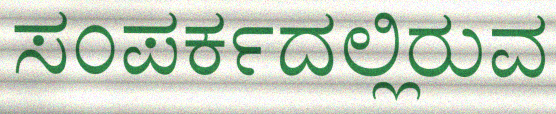
ಸಂಪರ್ಕದಲ್ಲಿರುವ